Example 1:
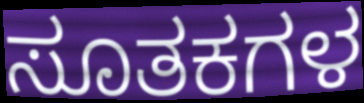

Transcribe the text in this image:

ಸೂತಕಗಳ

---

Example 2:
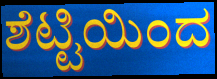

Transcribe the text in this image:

ಶೆಟ್ಟಿಯಿಂದ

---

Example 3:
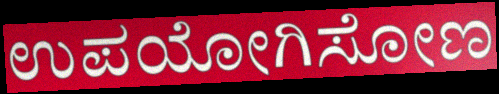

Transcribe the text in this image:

ಉಪಯೋಗಿಸೋಣ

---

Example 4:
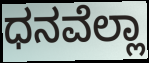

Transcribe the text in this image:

ಧನವೆಲ್ಲಾ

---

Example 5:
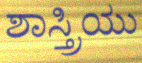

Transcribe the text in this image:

ಶಾಸ್ತ್ರಿಯು